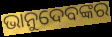
ଭାନୁଦେବଙ୍କର